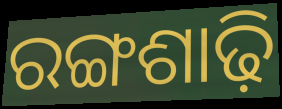
ରଙ୍ଗଶାଢ଼ି